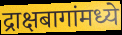
द्राक्षबागांमध्ये